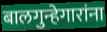
बालगुन्हेगारांना